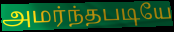
அமர்ந்தபடியே